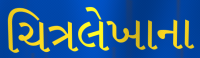
ચિત્રલેખાના